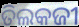
ତିଲକଜୀ